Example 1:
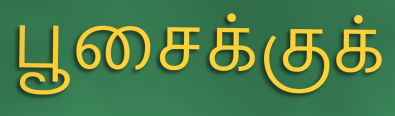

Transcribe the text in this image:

பூசைக்குக்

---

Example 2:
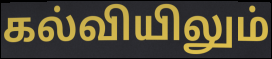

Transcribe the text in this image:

கல்வியிலும்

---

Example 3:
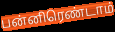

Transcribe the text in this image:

பன்னிரெண்டாம்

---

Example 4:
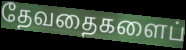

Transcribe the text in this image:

தேவதைகளைப்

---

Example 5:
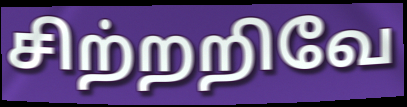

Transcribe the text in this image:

சிற்றறிவே